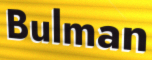
Bulman